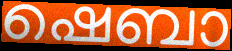
ഷെബാ